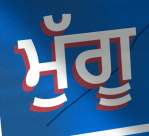
ਮੁੱਗੂ